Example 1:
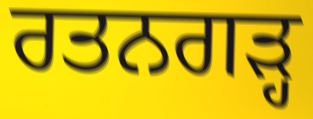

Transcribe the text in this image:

ਰਤਨਗੜ੍ਹ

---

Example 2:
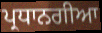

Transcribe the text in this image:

ਪ੍ਰਧਾਨਗੀਆ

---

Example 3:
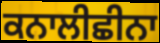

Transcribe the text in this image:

ਕਨਾਲੀਛੀਨਾ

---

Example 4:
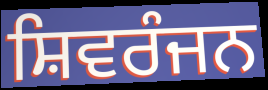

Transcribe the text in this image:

ਸ਼ਿਵਰੰਜਨ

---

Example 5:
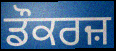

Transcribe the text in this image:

ਡੌਕਰਜ਼